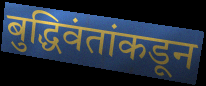
बुद्धिवंतांकडून